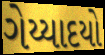
ગેય્યાદયો